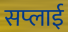
सप्‍लाई